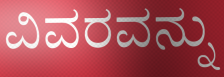
ವಿವರವನ್ನು